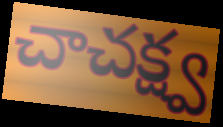
చాచక్ష్వ